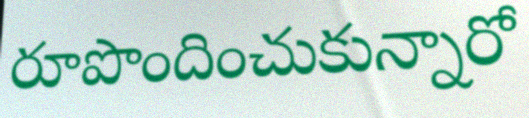
రూపొందించుకున్నారో